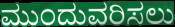
ಮುಂದುವರಿಸಲು